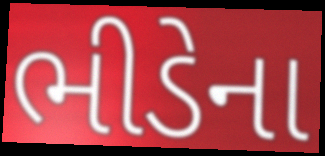
ભીડેના